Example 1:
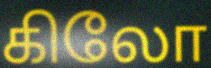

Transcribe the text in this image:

கிலோ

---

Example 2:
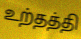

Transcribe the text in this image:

உற்தத்தி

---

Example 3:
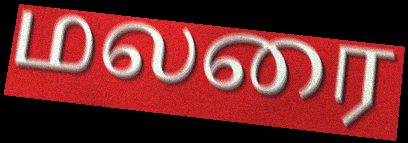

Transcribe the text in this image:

மலரை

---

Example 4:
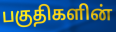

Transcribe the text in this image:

பகுதிகளின்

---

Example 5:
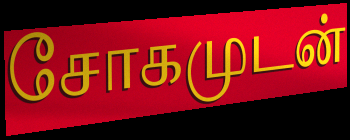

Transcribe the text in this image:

சோகமுடன்